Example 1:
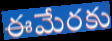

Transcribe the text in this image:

ఈమేరకు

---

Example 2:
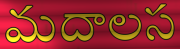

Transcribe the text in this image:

మదాలస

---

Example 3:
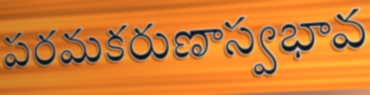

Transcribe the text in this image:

పరమకరుణాస్వభావ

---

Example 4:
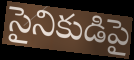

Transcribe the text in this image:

సైనికుడిపై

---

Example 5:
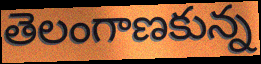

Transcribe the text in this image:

తెలంగాణకున్న